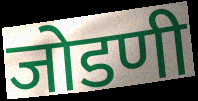
जोडणी